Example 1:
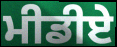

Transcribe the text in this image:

ਮੀਡੀਏ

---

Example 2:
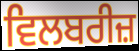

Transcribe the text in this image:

ਵਿਲਬਰੀਜ਼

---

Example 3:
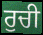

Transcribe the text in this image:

ਰੁਚੀ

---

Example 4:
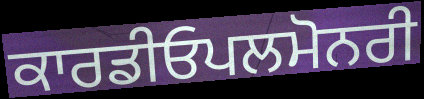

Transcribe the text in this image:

ਕਾਰਡੀਓਪਲਮੋਨਰੀ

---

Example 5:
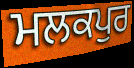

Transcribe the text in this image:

ਮਲਕਪੁਰ